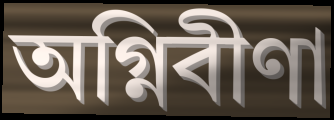
অগ্নিবীণা